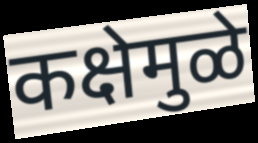
कक्षेमुळे